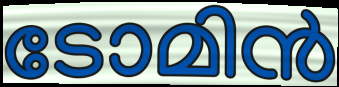
ടോമിൻ